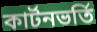
কার্টনভর্তি